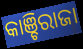
କାଞ୍ଚିରାଜା